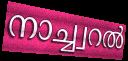
നാച്ച്വറൽ